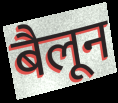
बैलून